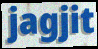
jagjit